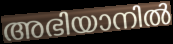
അഭിയാനിൽ